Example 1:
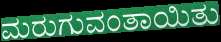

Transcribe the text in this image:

ಮರುಗುವಂತಾಯಿತು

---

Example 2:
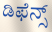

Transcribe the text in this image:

ಡಿಫೆನ್ಸ್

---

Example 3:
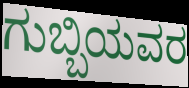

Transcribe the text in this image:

ಗುಬ್ಬಿಯವರ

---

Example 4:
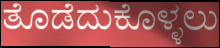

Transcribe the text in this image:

ತೊಡೆದುಕೊಳ್ಳಲು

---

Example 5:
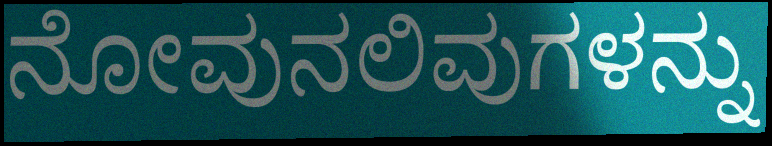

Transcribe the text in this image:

ನೋವುನಲಿವುಗಳನ್ನು